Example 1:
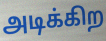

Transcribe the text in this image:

அடிக்கிற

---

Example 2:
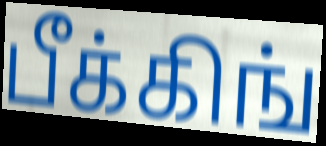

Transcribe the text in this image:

பீக்கிங்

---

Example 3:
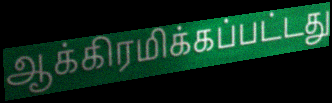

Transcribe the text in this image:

ஆக்கிரமிக்கப்பட்டது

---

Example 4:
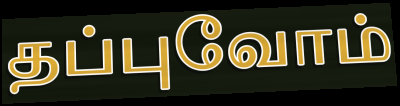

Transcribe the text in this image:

தப்புவோம்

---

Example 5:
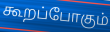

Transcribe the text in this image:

கூறப்போகும்